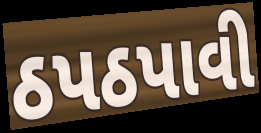
ઠપઠપાવી